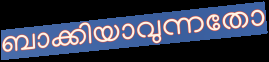
ബാക്കിയാവുന്നതോ